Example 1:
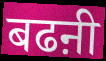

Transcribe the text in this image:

बढऩी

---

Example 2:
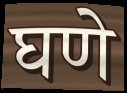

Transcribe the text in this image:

घणे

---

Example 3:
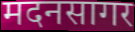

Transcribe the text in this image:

मदनसागर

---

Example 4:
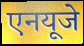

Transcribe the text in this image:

एनयूजे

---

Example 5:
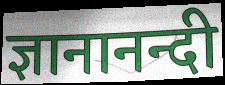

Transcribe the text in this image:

ज्ञानानन्दी